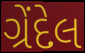
ગ્રેંદેલ